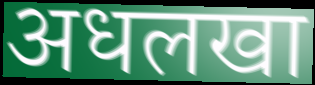
अधलखा